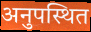
अनुपस्थित